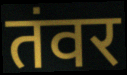
तंवर